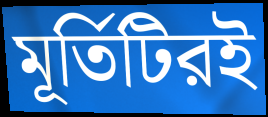
মূর্তিটিরই